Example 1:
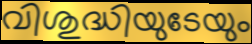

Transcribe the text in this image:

വിശുദ്ധിയുടേയും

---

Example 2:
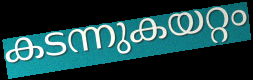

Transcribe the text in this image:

കടന്നുകയറ്റം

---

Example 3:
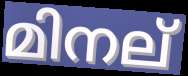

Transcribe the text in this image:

മിനല്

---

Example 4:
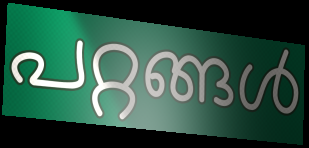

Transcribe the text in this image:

പറ്റങ്ങൾ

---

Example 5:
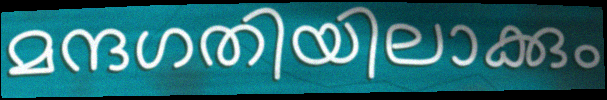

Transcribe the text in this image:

മന്ദഗതിയിലാക്കും